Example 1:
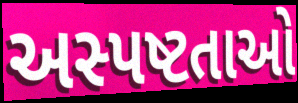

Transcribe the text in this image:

અસ્પષ્ટતાઓ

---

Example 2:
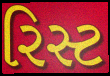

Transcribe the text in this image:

રિસ્ટ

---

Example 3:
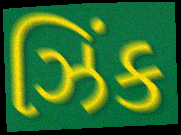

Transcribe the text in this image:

ઝિંક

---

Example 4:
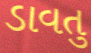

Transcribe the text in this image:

ડાવતુ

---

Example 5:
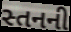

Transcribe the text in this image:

સ્તનની